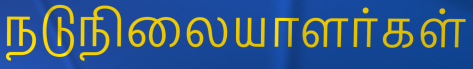
நடுநிலையாளர்கள்